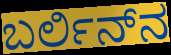
ಬರ್ಲಿನ್‍ನ